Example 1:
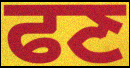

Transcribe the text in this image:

ਫਣ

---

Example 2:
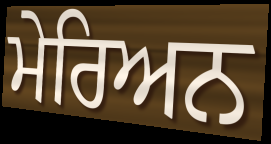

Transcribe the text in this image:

ਮੇਰਿਅਨ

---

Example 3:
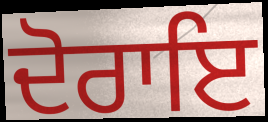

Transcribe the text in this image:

ਦੋਰਾਇ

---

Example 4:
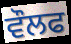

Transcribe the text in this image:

ਵੌਲਫ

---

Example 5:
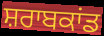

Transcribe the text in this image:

ਸ਼ਰਾਬਕਾਂਡ